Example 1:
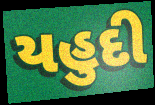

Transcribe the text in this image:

યહુદી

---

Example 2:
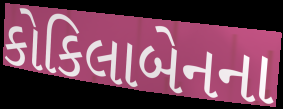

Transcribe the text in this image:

કોકિલાબેનના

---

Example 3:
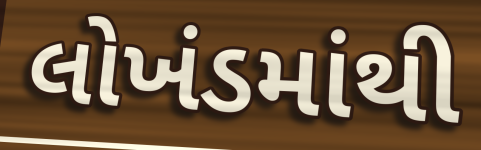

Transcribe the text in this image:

લોખંડમાંથી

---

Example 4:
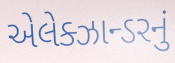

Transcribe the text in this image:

એલેક્ઝાન્ડરનું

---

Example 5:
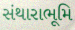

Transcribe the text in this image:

સંથારાભૂમિ